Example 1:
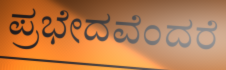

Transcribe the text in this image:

ಪ್ರಭೇದವೆಂದರೆ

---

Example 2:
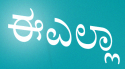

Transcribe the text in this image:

ಈಎಲ್ಲಾ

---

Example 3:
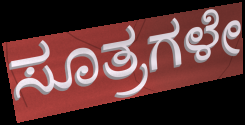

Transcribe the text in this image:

ಸೂತ್ರಗಳೇ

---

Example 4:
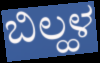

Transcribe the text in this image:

ಬಿಲ್ಹಳ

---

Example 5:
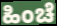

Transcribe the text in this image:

ಹಿಂಚೆ